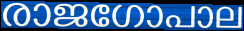
രാജഗോപാല